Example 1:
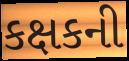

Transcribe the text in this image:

કક્ષકની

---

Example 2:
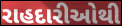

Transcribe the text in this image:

રાહદારીઓથી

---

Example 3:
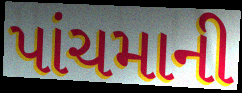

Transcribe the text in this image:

પાંચમાની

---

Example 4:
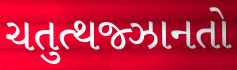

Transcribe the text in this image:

ચતુત્થજ્ઝાનતો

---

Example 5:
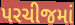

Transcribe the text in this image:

પરચીજમાં